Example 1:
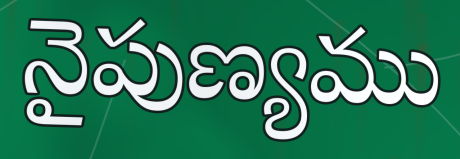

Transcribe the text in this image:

నైపుణ్యము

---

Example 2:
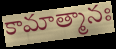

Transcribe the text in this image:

కామాత్మానః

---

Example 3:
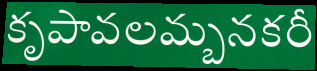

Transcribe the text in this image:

కృపావలమ్బనకరీ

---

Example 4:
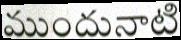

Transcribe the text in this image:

ముందునాటి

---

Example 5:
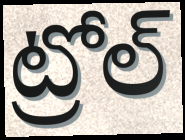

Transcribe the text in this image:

ట్రోల్